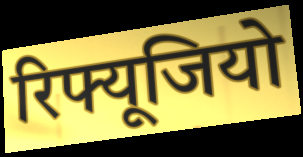
रिफ्यूजियो